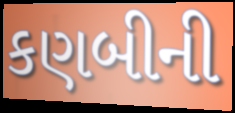
કણબીની